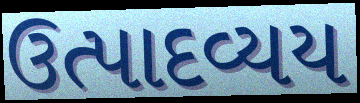
ઉત્પાદવ્યય